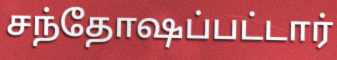
சந்தோஷப்பட்டார்